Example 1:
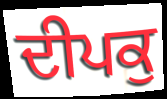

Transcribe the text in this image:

ਦੀਪਕੁ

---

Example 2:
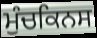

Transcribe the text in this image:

ਮੁੰਚਕਿਨਸ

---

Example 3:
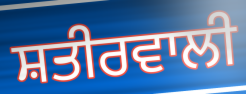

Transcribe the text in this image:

ਸ਼ਤੀਰਵਾਲੀ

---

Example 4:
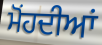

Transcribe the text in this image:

ਮੋਂਹਦੀਆਂ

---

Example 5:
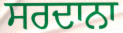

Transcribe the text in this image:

ਸਰਦਾਨਾ